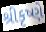
શ્રીકૃષ્ણે